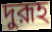
দুরূহ